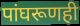
पांघरूणही